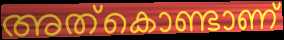
അത്കൊണ്ടാണ്